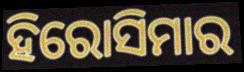
ହିରୋସିମାର